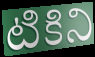
టికిని